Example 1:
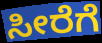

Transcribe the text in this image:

ಸೀರೆಗೆ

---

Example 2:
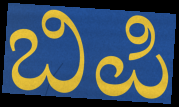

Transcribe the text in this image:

ಬಿಪಿ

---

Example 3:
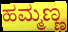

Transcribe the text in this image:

ಹಮ್ಮಣ್ಣ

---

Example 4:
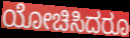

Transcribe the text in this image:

ಯೋಚಿಸಿದರೂ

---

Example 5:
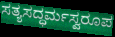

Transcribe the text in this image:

ಸತ್ಯಸದ್ಧರ್ಮಸ್ವರೂಪ